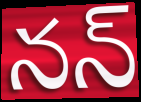
నన్